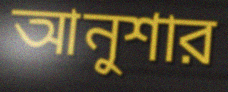
আনুশার